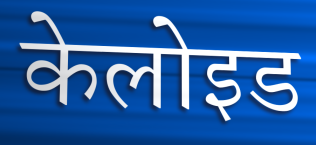
केलोइड